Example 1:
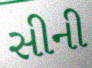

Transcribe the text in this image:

સીની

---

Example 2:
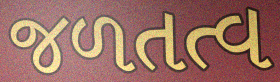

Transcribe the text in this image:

જળતત્વ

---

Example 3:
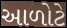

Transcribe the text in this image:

આળોટે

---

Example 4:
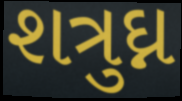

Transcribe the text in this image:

શત્રુઘ્ન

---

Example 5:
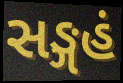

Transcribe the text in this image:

સઙ્ગહં